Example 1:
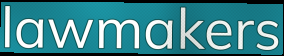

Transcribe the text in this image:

lawmakers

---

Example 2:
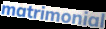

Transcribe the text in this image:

matrimonial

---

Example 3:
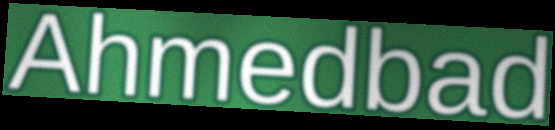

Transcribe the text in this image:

Ahmedbad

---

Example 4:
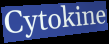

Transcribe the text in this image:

Cytokine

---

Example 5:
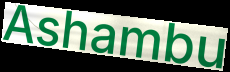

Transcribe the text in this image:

Ashambu